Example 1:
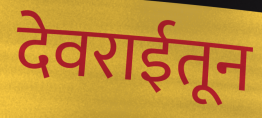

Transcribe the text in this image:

देवराईतून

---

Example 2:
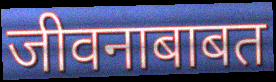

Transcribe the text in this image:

जीवनाबाबत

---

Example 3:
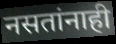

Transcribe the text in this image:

नसतांनाही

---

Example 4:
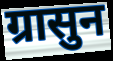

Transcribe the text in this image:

ग्रासुन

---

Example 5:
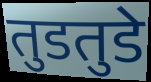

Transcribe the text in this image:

तुडतुडे